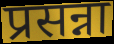
प्रसन्ना